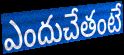
ఎందుచేతంటే